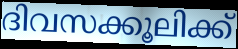
ദിവസക്കൂലിക്ക്